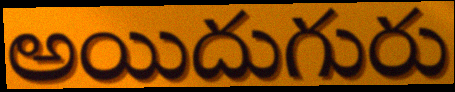
అయిదుగురు